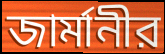
জার্মানীর